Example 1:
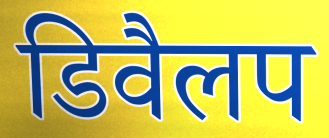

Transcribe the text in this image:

डिवैलप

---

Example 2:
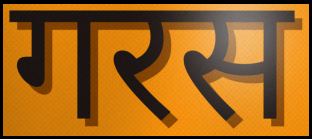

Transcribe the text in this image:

गरस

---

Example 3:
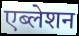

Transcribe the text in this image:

एब्लेशन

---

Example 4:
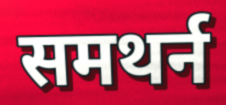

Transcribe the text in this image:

समथर्न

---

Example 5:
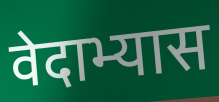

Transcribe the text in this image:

वेदाभ्यास